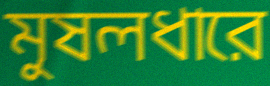
মুষলধারে